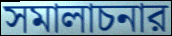
সমালাচনার